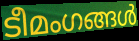
ടീമംഗങ്ങൾ